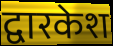
द्वारकेश